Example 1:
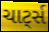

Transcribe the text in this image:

ચાર્ટ્સ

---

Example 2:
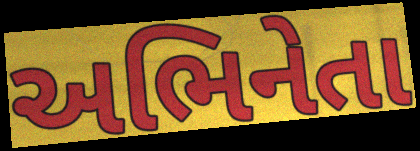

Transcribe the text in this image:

અભિનેતા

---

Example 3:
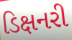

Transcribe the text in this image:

ડિક્ષનરી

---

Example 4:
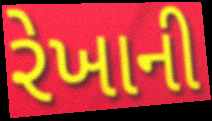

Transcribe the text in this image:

રેખાની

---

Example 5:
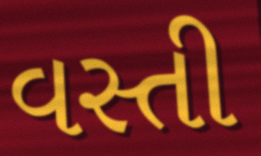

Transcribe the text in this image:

વસ્તી